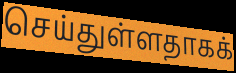
செய்துள்ளதாகக்